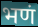
भणं